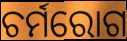
ଚର୍ମରୋଗ